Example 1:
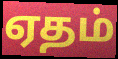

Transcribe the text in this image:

ஏதம்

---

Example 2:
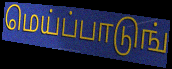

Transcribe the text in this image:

மெய்ப்பாடுங்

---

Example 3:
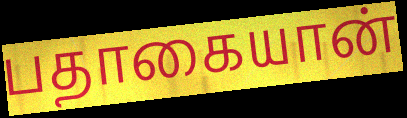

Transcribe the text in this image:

பதாகையான்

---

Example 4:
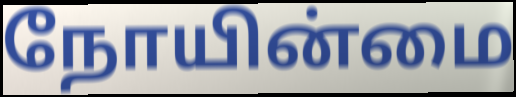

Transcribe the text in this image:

நோயின்மை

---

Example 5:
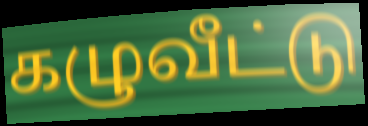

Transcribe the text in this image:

கழுவீட்டு